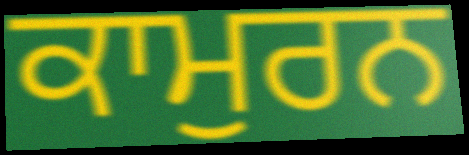
ਕਾਮੁਰਨ